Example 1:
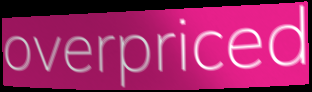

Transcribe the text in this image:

overpriced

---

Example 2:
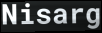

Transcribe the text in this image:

Nisarg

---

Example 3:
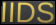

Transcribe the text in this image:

IIDS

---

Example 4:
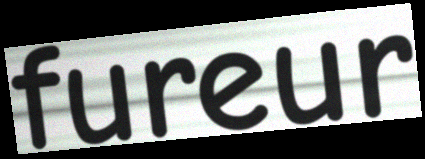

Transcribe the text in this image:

fureur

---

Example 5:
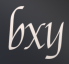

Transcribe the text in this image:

bxy